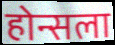
होन्सला